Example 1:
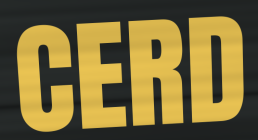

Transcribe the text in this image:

CERD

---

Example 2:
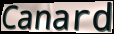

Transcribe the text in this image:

Canard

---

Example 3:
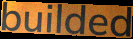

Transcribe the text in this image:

builded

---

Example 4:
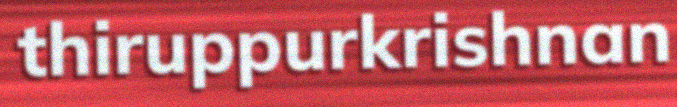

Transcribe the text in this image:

thiruppurkrishnan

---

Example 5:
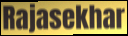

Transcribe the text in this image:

Rajasekhar